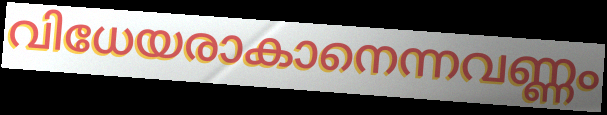
വിധേയരാകാനെന്നവണ്ണം